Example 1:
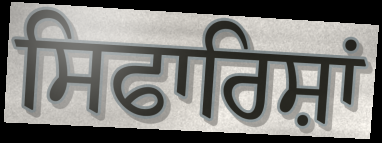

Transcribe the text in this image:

ਸਿਫਾਰਿਸ਼ਾਂ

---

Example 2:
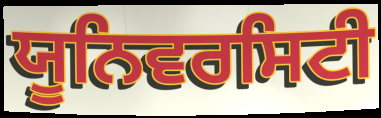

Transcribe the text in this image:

ਯੂਨਿਵਰਸਿਟੀ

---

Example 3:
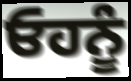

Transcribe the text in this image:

ਓਹਨੂੰ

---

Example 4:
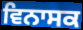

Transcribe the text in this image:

ਵਿਨਾਸਕ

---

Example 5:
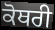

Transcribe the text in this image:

ਕੋਥਰੀ